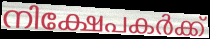
നിക്ഷേപകർക്ക്